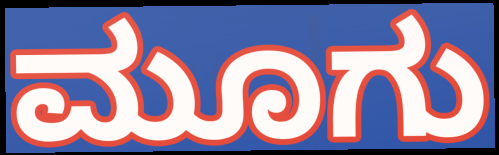
ಮೂಗು